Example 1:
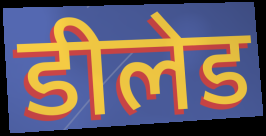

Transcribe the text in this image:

डीलेड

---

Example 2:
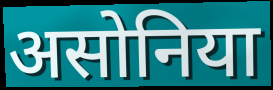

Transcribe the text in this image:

असोनिया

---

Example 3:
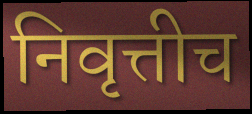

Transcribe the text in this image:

निवृत्तीच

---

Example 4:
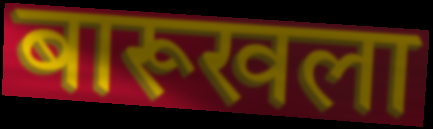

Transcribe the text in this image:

बारूखला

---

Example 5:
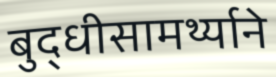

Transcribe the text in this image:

बुद्धीसामर्थ्याने